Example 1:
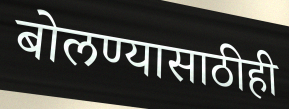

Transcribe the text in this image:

बोलण्यासाठीही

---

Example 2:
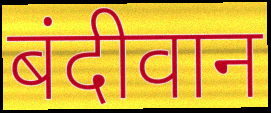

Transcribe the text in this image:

बंदीवान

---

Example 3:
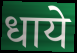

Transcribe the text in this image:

धाये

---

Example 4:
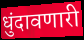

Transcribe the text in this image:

धुंदावणारी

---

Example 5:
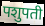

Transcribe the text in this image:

पशुपती